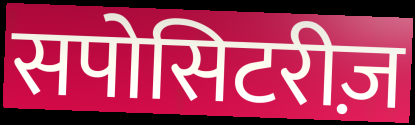
सपोसिटरीज़